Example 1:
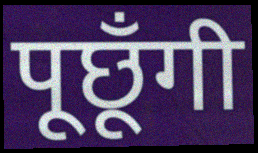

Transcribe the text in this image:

पूछूँगी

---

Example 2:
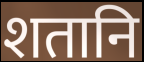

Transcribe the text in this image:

शतानि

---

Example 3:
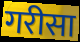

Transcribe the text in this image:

गरीसा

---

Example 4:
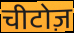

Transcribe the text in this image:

चीटोज़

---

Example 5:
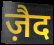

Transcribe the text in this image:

ज़ैद